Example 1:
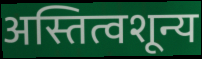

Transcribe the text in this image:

अस्तित्वशून्य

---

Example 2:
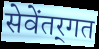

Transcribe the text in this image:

सेवेंतर्गत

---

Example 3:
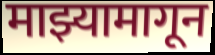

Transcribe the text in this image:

माझ्यामागून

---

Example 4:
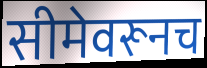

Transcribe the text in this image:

सीमेवरूनच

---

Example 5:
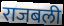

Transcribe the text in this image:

राजबली